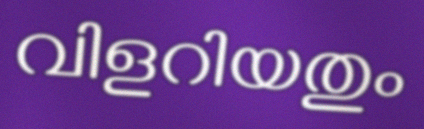
വിളറിയതും